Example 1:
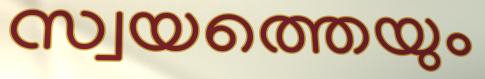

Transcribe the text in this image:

സ്വയത്തെയും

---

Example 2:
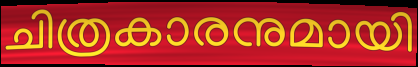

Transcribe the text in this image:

ചിത്രകാരനുമായി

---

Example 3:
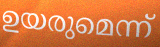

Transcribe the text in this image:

ഉയരുമെന്ന്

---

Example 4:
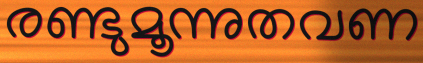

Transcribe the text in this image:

രണ്ടുമൂന്നുതവണ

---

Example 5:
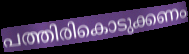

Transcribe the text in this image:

പത്തിരികൊടുക്കണം